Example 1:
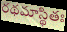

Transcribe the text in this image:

రథమాస్థితః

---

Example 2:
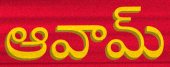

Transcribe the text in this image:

ఆవామ్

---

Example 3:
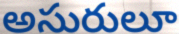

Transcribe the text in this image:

అసురులూ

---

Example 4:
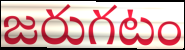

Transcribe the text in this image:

జరుగటం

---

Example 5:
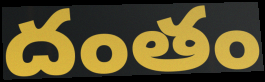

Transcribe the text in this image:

దంతం